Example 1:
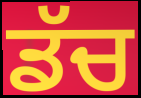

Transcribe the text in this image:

ਡੱਚ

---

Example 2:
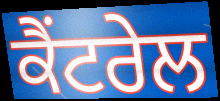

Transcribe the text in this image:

ਕੈਂਟਰੇਲ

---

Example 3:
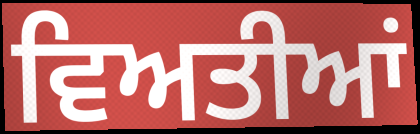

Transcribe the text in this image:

ਵਿਅਤੀਆਂ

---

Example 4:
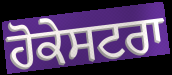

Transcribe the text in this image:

ਹੋਕੇਸਟਰਾ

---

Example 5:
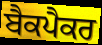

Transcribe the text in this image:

ਬੈਕਪੈਕਰ